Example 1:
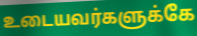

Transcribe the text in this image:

உடையவர்களுக்கே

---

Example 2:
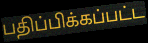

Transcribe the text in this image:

பதிப்பிக்கப்பட்ட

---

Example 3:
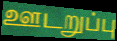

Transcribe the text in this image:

ஊடறுப்பு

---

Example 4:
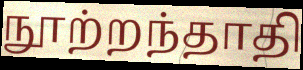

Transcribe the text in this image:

நூற்றந்தாதி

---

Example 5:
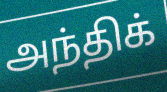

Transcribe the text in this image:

அந்திக்